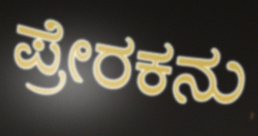
ಪ್ರೇರಕನು